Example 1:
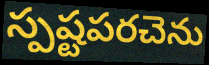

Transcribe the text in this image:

స్పష్టపరచెను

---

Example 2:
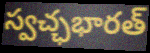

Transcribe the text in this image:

స్వచ్ఛభారత్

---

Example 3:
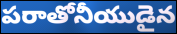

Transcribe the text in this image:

పరాతోనీయుడైన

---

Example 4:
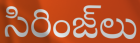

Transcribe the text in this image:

సిరింజ్‌లు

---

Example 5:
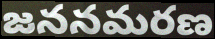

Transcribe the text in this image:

జననమరణ